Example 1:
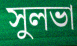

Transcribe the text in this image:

সুলভা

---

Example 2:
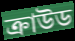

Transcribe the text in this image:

ক্রাউড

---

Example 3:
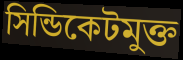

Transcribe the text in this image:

সিন্ডিকেটমুক্ত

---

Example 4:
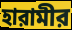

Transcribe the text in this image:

হারামীর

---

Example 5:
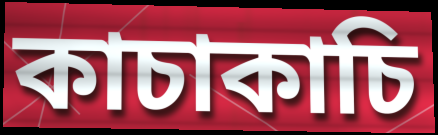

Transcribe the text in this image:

কাচাকাচি